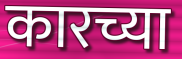
कारच्या